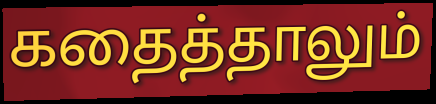
கதைத்தாலும்